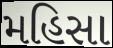
મહિસા